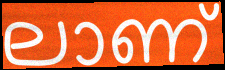
ലാണ്